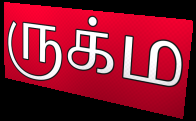
ருக்ம